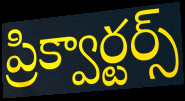
ప్రిక్వార్టర్స్